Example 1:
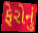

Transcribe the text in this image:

ફેરોનું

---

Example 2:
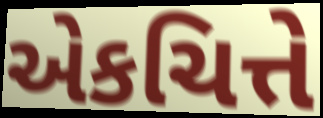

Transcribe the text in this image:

એકચિત્તે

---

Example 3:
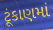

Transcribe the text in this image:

ટૂંકાણમાં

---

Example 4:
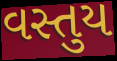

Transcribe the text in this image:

વસ્તુય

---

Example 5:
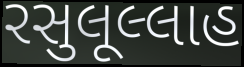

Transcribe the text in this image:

રસુલૂલ્લાહ